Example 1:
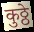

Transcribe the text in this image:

कुठ्ठे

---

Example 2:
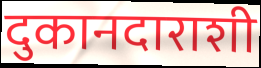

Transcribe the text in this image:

दुकानदाराशी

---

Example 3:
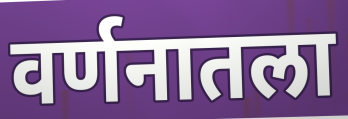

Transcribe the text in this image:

वर्णनातला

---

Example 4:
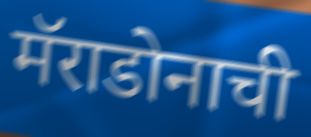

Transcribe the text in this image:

मॅराडोनाची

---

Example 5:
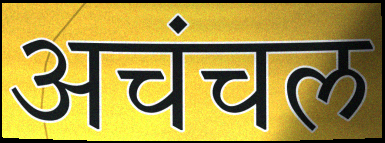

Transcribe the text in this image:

अचंचल